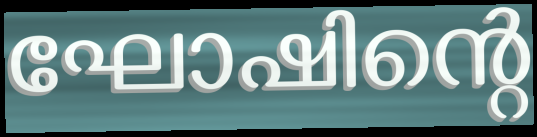
ഘോഷിന്റെ